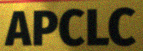
APCLC